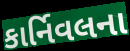
કાર્નિવલના